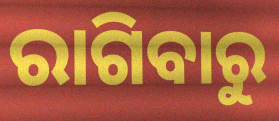
ରାଗିବାରୁ